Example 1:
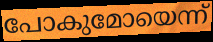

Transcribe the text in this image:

പോകുമോയെന്ന്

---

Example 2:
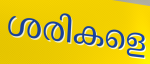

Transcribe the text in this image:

ശരികളെ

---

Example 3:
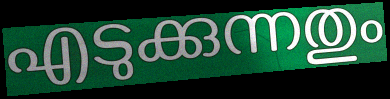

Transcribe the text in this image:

എടുക്കുന്നതും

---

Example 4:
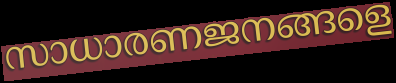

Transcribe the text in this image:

സാധാരണജനങ്ങളെ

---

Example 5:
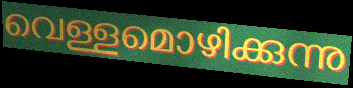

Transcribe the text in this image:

വെള്ളമൊഴിക്കുന്നു